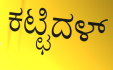
ಕಟ್ಟಿದಳ್